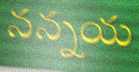
నన్నయ